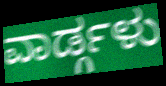
ವಾರ್ಡ್ಗಳು